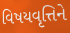
વિષયવૃત્તિને